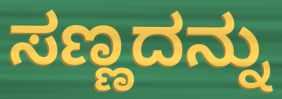
ಸಣ್ಣದನ್ನು